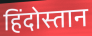
हिंदोस्तान